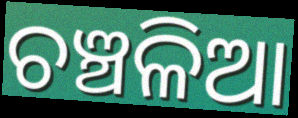
ଚଞ୍ଚଳିଆ